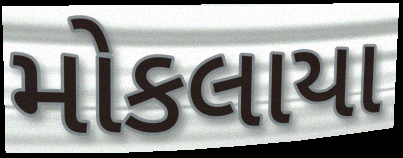
મોકલાયા